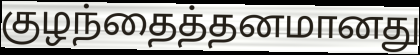
குழந்தைத்தனமானது